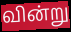
வின்று